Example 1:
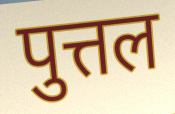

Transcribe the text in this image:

पुत्तल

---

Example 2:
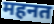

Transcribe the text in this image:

महनत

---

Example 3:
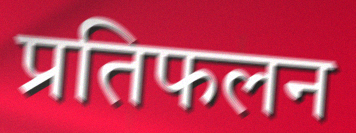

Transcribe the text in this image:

प्रतिफलन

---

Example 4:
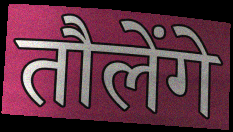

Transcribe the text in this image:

तौलेंगे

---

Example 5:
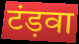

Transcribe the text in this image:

टंड़वा